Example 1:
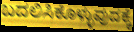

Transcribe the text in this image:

ಬದಲಿಸಿಕೊಳ್ಳುವುದಕ್ಕೆ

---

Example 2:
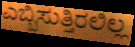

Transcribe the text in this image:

ಎಬ್ಬಿಸುತ್ತಿರಲಿಲ್ಲ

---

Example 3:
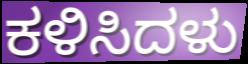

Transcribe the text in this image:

ಕಳಿಸಿದಳು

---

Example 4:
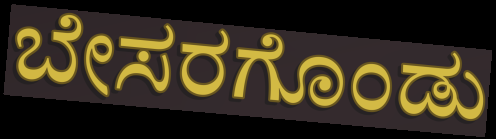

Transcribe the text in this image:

ಬೇಸರಗೊಂಡು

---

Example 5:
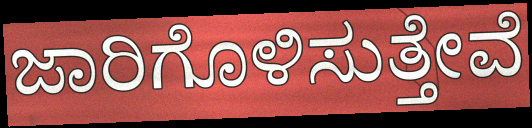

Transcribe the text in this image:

ಜಾರಿಗೊಳಿಸುತ್ತೇವೆ